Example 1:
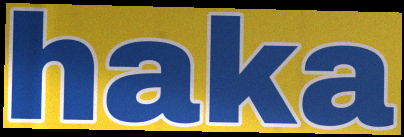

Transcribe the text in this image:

haka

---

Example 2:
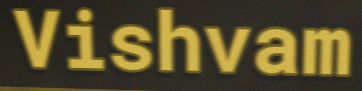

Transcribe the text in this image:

Vishvam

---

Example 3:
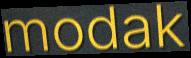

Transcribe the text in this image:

modak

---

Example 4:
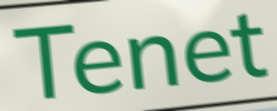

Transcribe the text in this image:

Tenet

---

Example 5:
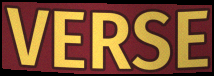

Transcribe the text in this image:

VERSE